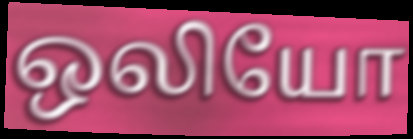
ஒலியோ